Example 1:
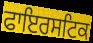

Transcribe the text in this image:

ਫਾਇਰਸਟਿਕ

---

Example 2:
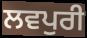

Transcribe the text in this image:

ਲਵਪੁਰੀ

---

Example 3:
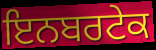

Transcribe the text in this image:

ਇਨਬਰਟੇਕ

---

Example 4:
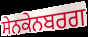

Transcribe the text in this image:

ਸੇਨਕੇਨਬਰਗ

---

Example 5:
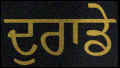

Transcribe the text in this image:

ਦੁਰਾਡੇ